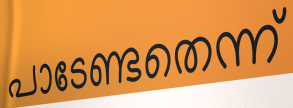
പാടേണ്ടതെന്ന്